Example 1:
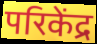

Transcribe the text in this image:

परिकेंद्र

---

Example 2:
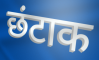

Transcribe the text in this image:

छंटाक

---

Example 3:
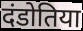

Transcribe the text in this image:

दंडोतिया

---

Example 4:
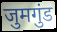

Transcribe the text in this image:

जुमगुंड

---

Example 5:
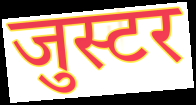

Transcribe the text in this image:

जुस्टर